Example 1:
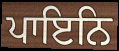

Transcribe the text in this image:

ਪਾਇਨਿ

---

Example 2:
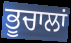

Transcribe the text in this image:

ਭੂਚਾਲਾਂ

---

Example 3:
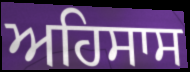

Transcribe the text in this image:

ਅਹਿਸਾਸ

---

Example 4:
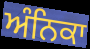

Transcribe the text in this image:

ਅੰਨਿਕਾ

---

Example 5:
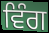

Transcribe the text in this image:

ਵਿੰਗ